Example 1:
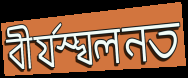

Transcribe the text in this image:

বীৰ্যস্খলনত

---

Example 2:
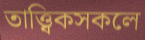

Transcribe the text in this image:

তাত্ত্বিকসকলে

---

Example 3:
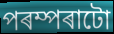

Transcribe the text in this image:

পৰম্পৰাটো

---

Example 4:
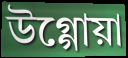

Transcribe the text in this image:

উগ্গোয়া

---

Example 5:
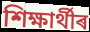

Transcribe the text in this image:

শিক্ষাৰ্থীৰ